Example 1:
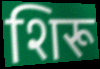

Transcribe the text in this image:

शिरू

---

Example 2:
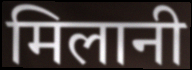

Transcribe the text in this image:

मिलानी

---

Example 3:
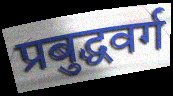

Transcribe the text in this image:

प्रबुद्धवर्ग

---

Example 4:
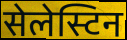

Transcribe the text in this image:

सेलेस्टिन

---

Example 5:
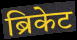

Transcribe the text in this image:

ब्रिकेट